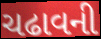
ચઢાવની